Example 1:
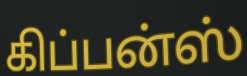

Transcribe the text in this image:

கிப்பன்ஸ்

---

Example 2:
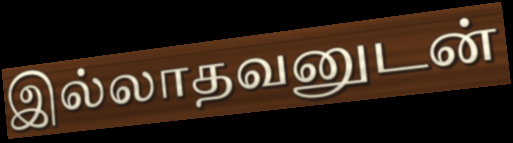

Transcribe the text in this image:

இல்லாதவனுடன்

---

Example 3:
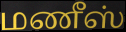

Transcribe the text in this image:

மணீஸ்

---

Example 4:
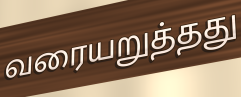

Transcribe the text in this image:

வரையறுத்தது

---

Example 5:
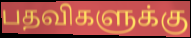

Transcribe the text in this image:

பதவிகளுக்கு